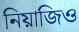
নিয়াজিও